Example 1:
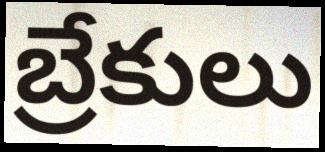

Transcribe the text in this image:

బ్రేకులు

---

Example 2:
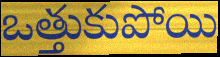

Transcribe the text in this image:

ఒత్తుకుపోయి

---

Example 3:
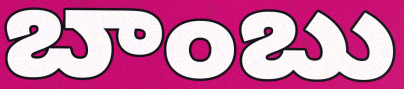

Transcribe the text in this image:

బాంబు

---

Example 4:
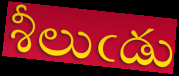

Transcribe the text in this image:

శీలుఁడు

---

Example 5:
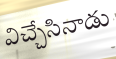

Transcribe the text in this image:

విచ్చేసినాడు